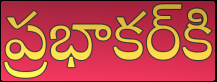
ప్రభాకర్‌కి